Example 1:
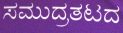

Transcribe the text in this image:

ಸಮುದ್ರತಟದ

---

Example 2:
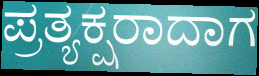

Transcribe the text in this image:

ಪ್ರತ್ಯಕ್ಷರಾದಾಗ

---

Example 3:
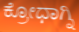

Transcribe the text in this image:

ಕ್ರೋಧಾಗ್ನಿ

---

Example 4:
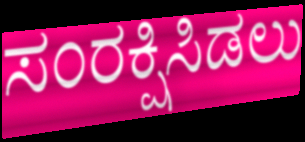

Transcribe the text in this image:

ಸಂರಕ್ಷಿಸಿಡಲು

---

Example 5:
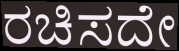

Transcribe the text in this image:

ರಚಿಸದೇ